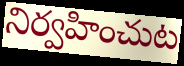
నిర్వహించుట